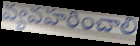
వ్యవహరించాలి